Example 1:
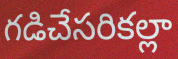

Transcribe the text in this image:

గడిచేసరికల్లా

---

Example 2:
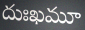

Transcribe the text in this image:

దుఃఖమూ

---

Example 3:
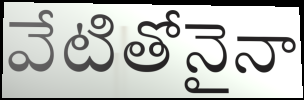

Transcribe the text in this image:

వేటితోనైనా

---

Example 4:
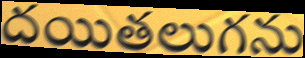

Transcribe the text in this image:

దయితలుగను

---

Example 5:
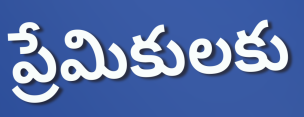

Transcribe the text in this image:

ప్రేమికులకు